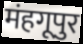
मंहगूपुर